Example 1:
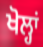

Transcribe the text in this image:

ਖੋਲ੍ਹਾਂ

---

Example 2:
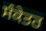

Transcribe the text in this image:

ਸੰਕੇਤਰ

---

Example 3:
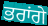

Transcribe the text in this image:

ਭਰਾਂਗੇ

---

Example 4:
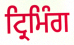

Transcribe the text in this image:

ਟ੍ਰਿਮਿੰਗ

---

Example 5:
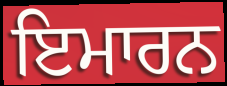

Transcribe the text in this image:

ਇਮਾਰਨ